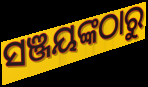
ସଞ୍ଜୟଙ୍କଠାରୁ